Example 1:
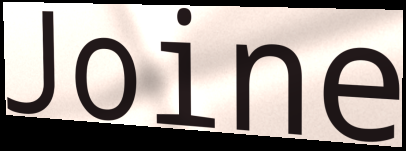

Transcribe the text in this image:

Joine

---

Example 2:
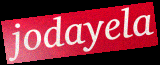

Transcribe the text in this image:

jodayela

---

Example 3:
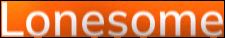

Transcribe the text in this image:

Lonesome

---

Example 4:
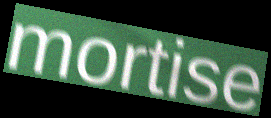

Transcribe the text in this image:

mortise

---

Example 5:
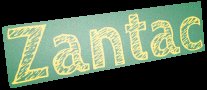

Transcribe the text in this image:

Zantac